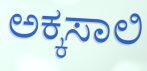
ಅಕ್ಕಸಾಲಿ